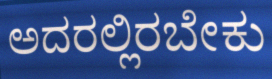
ಅದರಲ್ಲಿರಬೇಕು